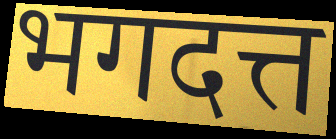
भगदत्त